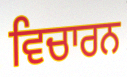
ਵਿਚਾਰਨ